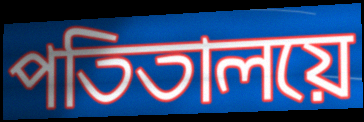
পতিতালয়ে